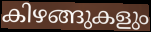
കിഴങ്ങുകളും